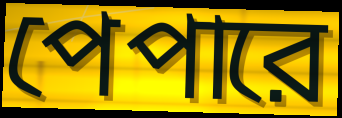
পেপারে